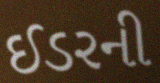
ઈડરની